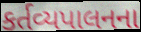
કર્તવ્યપાલનના